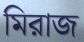
মিরাজ